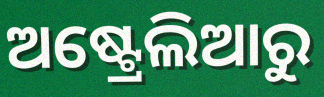
ଅଷ୍ଟ୍ରେଲିଆରୁ